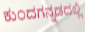
ಕುಂದಗನ್ನಡದಲ್ಲಿ